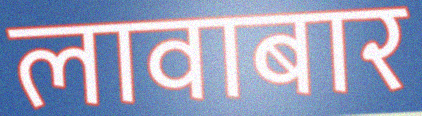
लावाबार